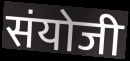
संयोजी